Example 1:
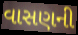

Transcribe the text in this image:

વાસણની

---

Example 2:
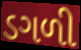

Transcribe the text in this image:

ડગળી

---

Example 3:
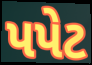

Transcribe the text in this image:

પપેટ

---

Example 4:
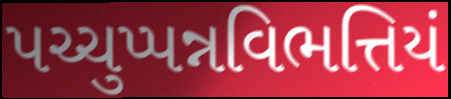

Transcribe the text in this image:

પચ્ચુપ્પન્નવિભત્તિયં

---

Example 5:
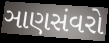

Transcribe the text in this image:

ઞાણસંવરો